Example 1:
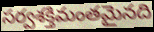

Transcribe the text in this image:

సర్వశక్తిమంతమైనది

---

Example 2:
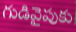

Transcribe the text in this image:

గుడివైపుకు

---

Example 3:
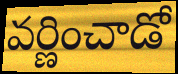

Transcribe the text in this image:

వర్ణించాడో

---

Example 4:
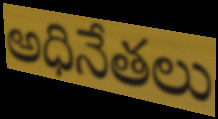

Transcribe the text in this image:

అధినేతలు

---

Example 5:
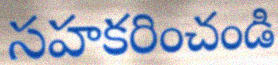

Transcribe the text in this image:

సహకరించండి